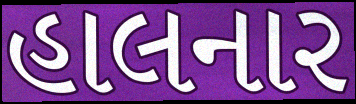
હાલનાર